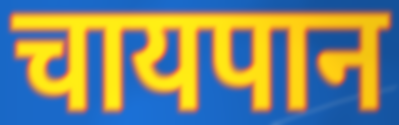
चायपान